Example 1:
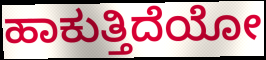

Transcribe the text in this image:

ಹಾಕುತ್ತಿದೆಯೋ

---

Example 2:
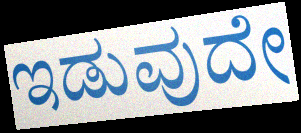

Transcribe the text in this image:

ಇಡುವುದೇ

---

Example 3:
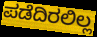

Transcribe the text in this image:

ಪಡೆದಿರಲಿಲ್ಲ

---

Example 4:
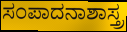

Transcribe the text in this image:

ಸಂಪಾದನಾಶಾಸ್ತ್ರ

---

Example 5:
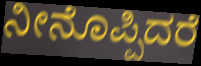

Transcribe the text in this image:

ನೀನೊಪ್ಪಿದರೆ